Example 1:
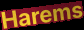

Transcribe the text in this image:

Harems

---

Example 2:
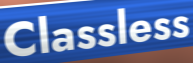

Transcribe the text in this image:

Classless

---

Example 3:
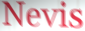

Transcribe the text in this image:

Nevis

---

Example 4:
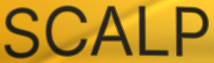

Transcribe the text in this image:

SCALP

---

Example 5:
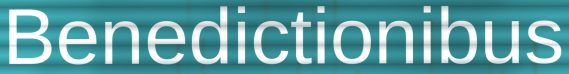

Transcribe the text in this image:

Benedictionibus